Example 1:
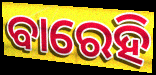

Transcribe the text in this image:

ବାରେହି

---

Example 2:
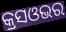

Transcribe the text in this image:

କ୍ରସଓଭର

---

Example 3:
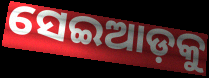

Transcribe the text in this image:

ସେଇଆଡ଼କୁ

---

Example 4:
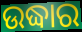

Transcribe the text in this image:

ଉଦ୍ଧାର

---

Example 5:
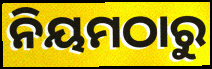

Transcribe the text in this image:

ନିୟମଠାରୁ